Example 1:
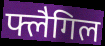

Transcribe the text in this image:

फ्लैगिल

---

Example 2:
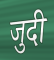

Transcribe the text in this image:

जुदी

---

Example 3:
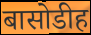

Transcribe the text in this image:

बासोडीह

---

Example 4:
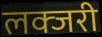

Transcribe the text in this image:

लक्‍जरी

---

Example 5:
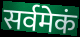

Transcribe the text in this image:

सर्वमेकं